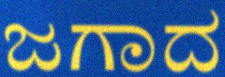
ಜಗಾದ